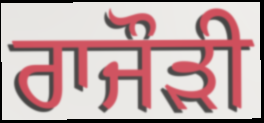
ਰਾਜੌੜੀ